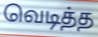
வெடித்த